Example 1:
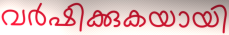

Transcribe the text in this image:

വർഷിക്കുകയായി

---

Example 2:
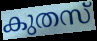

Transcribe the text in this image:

കുതസ്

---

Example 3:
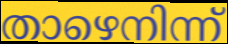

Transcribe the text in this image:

താഴെനിന്ന്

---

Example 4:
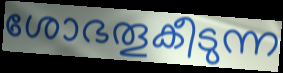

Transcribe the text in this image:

ശോഭതൂകീടുന്ന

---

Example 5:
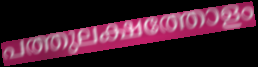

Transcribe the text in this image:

പത്തുലക്ഷത്തോളം